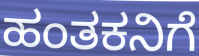
ಹಂತಕನಿಗೆ